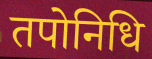
तपोनिधि